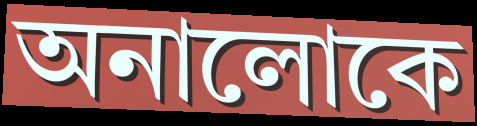
অনালোকে